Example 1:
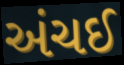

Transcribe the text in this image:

અંચઈ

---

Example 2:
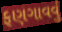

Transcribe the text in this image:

ફણગાવવું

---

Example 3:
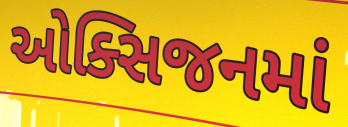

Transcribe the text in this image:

ઓક્સિજનમાં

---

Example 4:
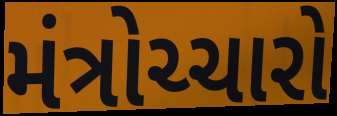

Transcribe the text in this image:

મંત્રોચ્ચારો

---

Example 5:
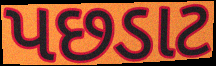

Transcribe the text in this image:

પછડાટ